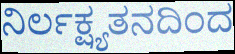
ನಿರ್ಲಕ್ಷ್ಯತನದಿಂದ